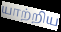
யாற்றிய